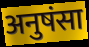
अनुषंसा